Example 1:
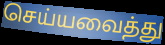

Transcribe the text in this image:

செய்யவைத்து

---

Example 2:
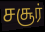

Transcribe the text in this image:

சசூர்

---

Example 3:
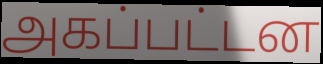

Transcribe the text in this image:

அகப்பட்டன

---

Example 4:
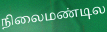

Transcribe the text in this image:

நிலைமண்டில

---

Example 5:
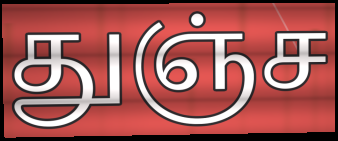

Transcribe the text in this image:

துஞ்ச